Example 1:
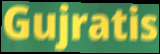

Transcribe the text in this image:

Gujratis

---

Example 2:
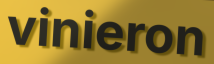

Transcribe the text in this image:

vinieron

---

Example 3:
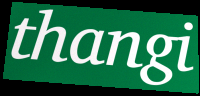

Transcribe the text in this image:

thangi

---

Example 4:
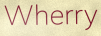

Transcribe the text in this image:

Wherry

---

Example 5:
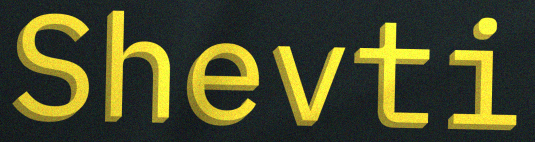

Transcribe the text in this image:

Shevti